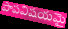
పాపవిషయమై